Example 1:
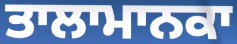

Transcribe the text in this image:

ਤਾਲਾਮਾਨਕਾ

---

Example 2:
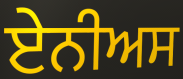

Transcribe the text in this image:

ਏਨੀਅਸ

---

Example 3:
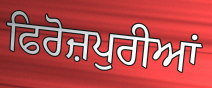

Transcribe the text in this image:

ਫਿਰੋਜ਼ਪੁਰੀਆਂ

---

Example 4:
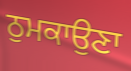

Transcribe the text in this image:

ਠੁਮਕਾਉਣਾ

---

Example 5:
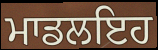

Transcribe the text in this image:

ਮਾਡਲਇਹ